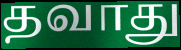
தவாது